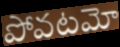
పోవటమో